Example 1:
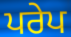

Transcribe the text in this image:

ਪਰੇਪ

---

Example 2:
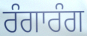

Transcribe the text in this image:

ਰੰਗਾਰੰਗ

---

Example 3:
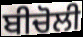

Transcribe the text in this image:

ਬੀਚੋਲੀ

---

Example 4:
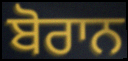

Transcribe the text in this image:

ਬੋਰਾਨ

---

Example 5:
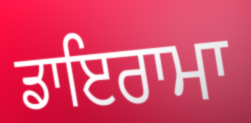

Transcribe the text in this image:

ਡਾਇਰਾਮਾ